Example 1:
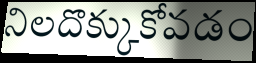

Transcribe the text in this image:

నిలదొక్కుకోవడం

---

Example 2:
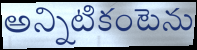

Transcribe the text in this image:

అన్నిటికంటెను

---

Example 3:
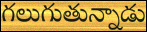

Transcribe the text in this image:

గలుగుతున్నాడు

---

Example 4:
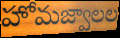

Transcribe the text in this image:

హోమజ్వాలల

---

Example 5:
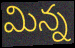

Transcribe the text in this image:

మిన్న